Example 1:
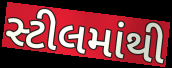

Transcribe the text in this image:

સ્ટીલમાંથી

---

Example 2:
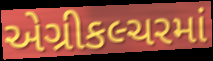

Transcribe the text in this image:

એગ્રીકલ્ચરમાં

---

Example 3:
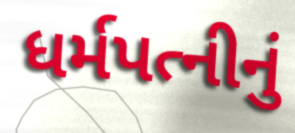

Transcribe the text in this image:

ધર્મપત્નીનું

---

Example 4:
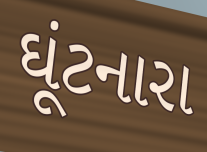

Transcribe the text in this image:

ઘૂંટનારા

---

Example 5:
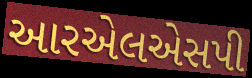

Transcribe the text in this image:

આરએલએસપી